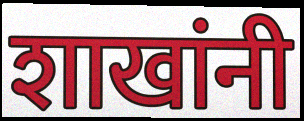
शाखांनी